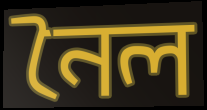
নৈল